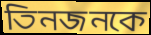
তিনজনকে